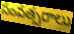
సంవత్సరాలు